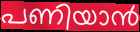
പണിയാൻ